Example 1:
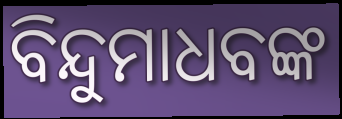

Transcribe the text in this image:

ବିନ୍ଦୁମାଧବଙ୍କ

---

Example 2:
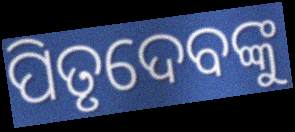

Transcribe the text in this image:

ପିତୃଦେବଙ୍କୁ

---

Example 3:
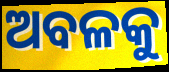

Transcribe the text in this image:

ଅବଳକୁ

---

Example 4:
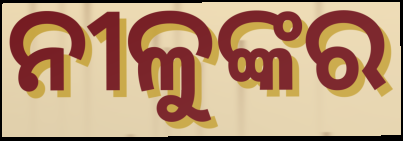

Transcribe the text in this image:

ନୀଳୁଙ୍କର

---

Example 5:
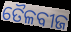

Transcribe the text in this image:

ତୈଳବୀଜ